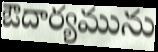
ఔదార్యమును